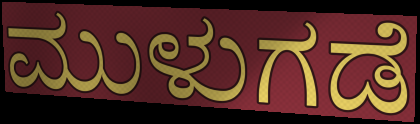
ಮುಳುಗಡೆ